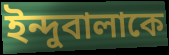
ইন্দুবালাকে